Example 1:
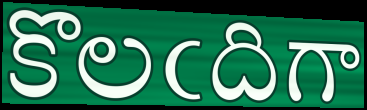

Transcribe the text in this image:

కొలఁదిగా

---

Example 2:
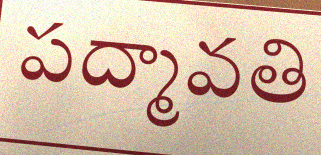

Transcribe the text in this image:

పద్మావతి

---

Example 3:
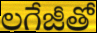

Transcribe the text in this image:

లగేజీతో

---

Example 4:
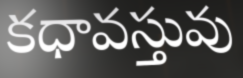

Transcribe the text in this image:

కధావస్తువు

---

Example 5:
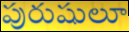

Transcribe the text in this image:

పురుషులూ